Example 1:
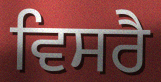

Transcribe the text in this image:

ਵਿਸਰੈ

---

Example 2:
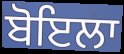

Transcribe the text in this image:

ਬੋਇਲਾ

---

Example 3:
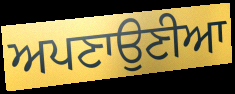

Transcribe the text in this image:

ਅਪਣਾਉਣੀਆ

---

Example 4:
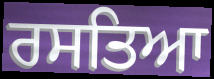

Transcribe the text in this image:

ਰਸਤਿਆ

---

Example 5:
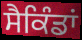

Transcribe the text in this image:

ਸੈਕਿੰਡਾਂ